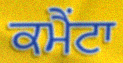
ਕਮੈਂਟਾ